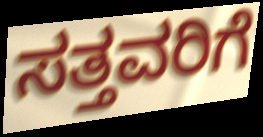
ಸತ್ತವರಿಗೆ